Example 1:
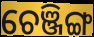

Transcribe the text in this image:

ଚେଞ୍ଜିଙ୍ଗ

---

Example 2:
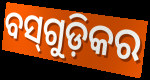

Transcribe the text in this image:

ବସ୍‌ଗୁଡ଼ିକର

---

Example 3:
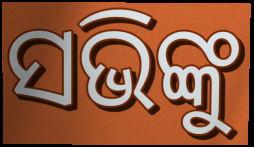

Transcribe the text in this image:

ସଭିଙ୍କୁ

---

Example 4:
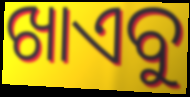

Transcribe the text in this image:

ଖାଏବୁ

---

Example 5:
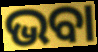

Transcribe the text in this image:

ଭବା